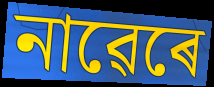
নাৱেৰে